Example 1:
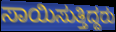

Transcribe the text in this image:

ಸಾಯಿಸುತ್ತಿದ್ದರು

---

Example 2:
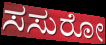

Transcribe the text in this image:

ಸಸುರೋ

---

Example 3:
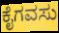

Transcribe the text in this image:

ಕೈಗವಸು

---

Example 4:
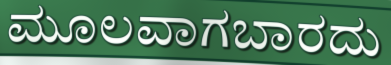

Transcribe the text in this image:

ಮೂಲವಾಗಬಾರದು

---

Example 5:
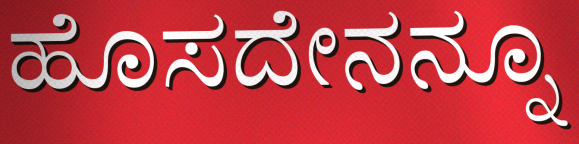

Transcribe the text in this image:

ಹೊಸದೇನನ್ನೂ